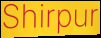
Shirpur